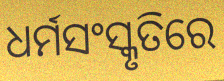
ଧର୍ମସଂସ୍କୃତିରେ